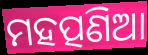
ମହତ୍ପଣିଆ